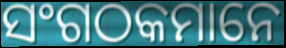
ସଂଗଠକମାନେ